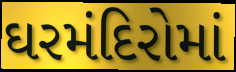
ઘરમંદિરોમાં